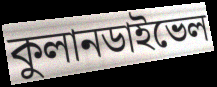
কুলানডাইভেল